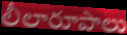
లీలారూపాలు